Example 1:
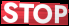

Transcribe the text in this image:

STOP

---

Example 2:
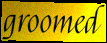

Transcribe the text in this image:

groomed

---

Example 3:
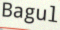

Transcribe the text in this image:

Bagul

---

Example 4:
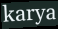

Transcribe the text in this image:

karya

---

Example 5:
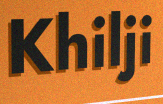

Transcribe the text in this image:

Khilji